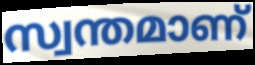
സ്വന്തമാണ്